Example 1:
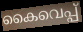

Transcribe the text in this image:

കൈവെപ്പ്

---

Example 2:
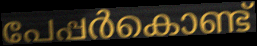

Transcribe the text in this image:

പേപ്പർകൊണ്ട്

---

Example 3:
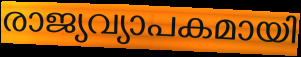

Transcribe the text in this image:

രാജ്യവ്യാപകമായി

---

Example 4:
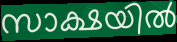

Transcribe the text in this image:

സാക്ഷയിൽ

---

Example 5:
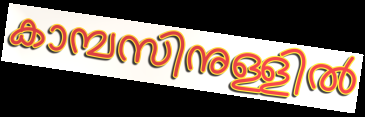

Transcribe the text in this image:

കാമ്പസിനുള്ളിൽ